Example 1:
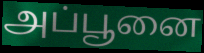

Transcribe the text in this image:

அப்பூனை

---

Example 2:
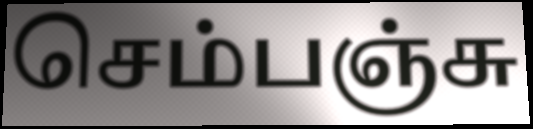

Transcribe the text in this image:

செம்பஞ்சு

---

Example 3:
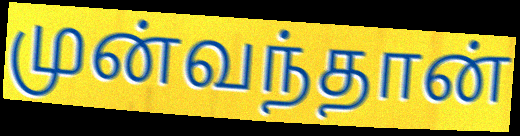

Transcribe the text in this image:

முன்வந்தான்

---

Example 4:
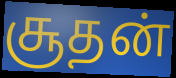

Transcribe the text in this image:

சூதன்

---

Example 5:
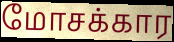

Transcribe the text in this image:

மோசக்கார